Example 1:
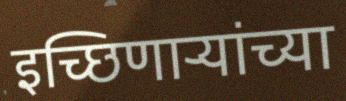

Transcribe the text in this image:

इच्छिणार्‍यांच्या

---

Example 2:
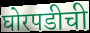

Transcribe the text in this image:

घोरपडीची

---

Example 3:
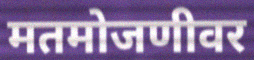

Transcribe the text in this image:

मतमोजणीवर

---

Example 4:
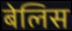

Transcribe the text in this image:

बेलिस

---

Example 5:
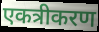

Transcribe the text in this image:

एकत्रीकरण